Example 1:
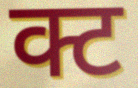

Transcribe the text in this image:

क्ट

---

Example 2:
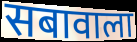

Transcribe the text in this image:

सबावाला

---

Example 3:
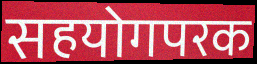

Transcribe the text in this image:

सहयोगपरक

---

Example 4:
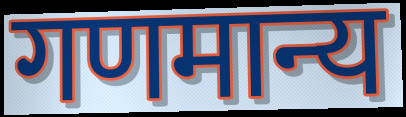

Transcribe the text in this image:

गणमान्‍य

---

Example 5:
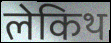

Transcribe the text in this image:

लेकिथ